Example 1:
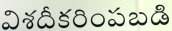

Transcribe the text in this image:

విశదీకరింపబడి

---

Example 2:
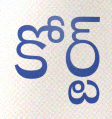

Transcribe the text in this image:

కోర్ట్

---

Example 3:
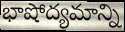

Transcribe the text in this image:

భాషోద్యమాన్ని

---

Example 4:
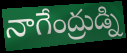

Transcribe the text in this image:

నాగేంద్రుడ్ని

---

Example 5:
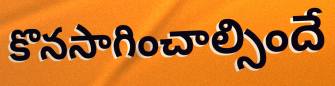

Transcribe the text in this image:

కొనసాగించాల్సిందే